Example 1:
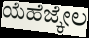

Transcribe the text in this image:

ಯೆಹೆಜ್ಕೇಲ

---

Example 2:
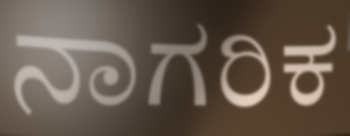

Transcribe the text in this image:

ನಾಗರಿಕ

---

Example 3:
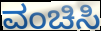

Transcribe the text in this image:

ವಂಚಿಸಿ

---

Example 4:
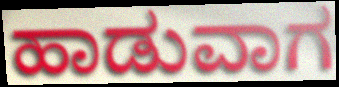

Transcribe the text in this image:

ಹಾಡುವಾಗ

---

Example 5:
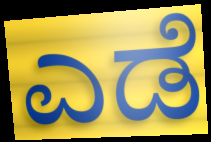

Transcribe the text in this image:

ಎಡೆ